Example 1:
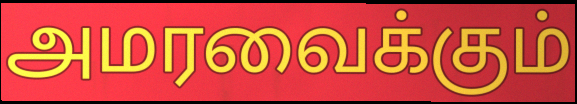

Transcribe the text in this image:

அமரவைக்கும்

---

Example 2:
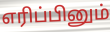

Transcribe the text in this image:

எரிப்பினும்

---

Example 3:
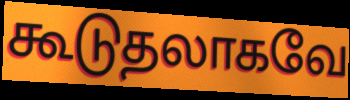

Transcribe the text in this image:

கூடுதலாகவே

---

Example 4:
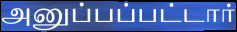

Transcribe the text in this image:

அனுப்பப்பட்டார்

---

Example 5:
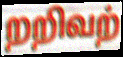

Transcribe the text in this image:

றறிவற்